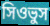
সিওভুস